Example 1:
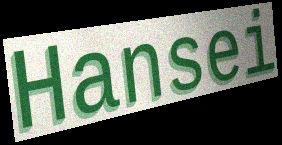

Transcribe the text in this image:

Hansei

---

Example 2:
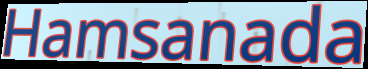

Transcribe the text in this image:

Hamsanada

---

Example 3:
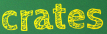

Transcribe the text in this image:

crates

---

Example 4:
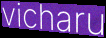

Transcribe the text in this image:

vicharu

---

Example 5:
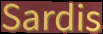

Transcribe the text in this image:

Sardis